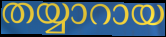
തയ്യാറായ